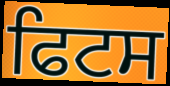
ਫਿਟਸ